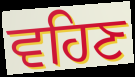
ਵਹਿਣ